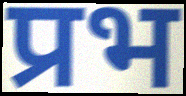
प्रभ